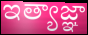
ఇత్యాజ్ఞా